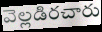
వెల్లడిరచారు